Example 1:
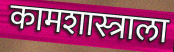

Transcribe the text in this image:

कामशास्त्राला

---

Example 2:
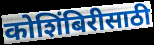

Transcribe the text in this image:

कोशिंबिरीसाठी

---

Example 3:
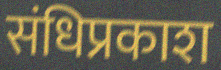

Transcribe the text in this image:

संधिप्रकाश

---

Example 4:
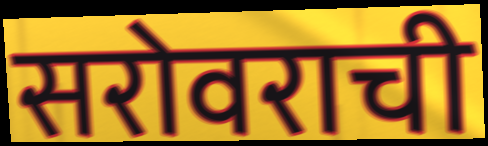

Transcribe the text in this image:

सरोवराची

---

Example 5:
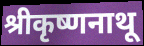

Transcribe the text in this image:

श्रीकृष्णनाथू